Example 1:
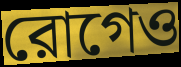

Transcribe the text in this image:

রোগেও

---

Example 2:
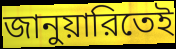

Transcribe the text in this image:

জানুয়ারিতেই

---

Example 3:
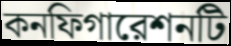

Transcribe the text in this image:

কনফিগারেশনটি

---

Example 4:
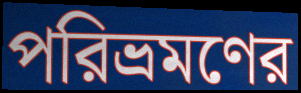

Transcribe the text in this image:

পরিভ্রমণের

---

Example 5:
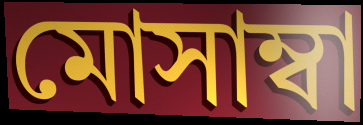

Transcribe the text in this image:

মোসাম্বা